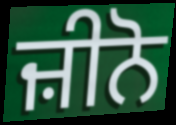
ਜ਼ੀਨੋ